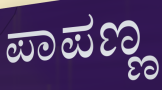
ಪಾಪಣ್ಣ